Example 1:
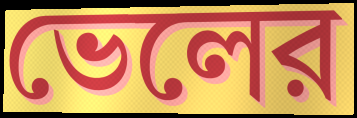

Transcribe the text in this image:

ভেলের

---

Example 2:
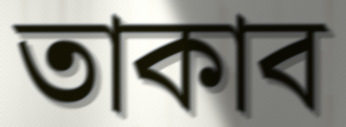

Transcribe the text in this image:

তাকাব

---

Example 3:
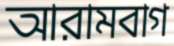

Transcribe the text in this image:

আরামবাগ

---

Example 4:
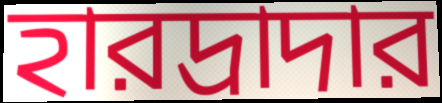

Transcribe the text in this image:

হারদ্রাদার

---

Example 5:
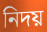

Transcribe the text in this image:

নিদয়